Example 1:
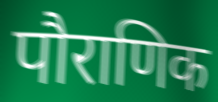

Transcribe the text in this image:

पौराणिक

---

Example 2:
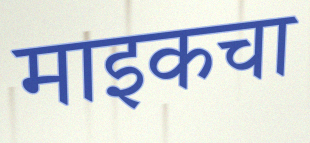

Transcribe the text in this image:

माइकचा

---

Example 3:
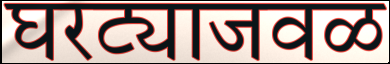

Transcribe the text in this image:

घरट्याजवळ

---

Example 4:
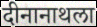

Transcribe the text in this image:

दीनानाथला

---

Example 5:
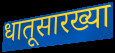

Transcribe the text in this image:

धातूसारख्या